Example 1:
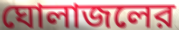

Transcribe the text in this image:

ঘোলাজলের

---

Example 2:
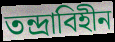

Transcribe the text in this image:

তন্দ্রাবিহীন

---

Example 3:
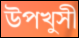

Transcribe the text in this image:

উপখুসী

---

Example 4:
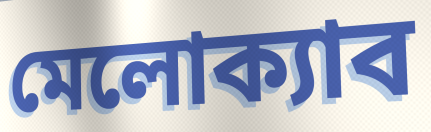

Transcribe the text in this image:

মেলোক্যাব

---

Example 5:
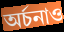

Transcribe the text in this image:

অর্চনাও